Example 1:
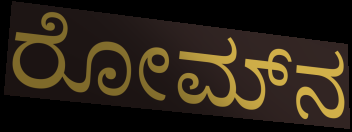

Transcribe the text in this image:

ರೋಮ್‌ನ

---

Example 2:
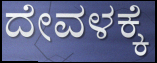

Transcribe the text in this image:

ದೇವಳಕ್ಕೆ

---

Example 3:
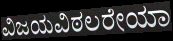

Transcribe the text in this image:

ವಿಜಯವಿಠಲರೇಯಾ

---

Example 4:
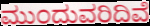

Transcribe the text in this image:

ಮುಂದುವರಿದಿವೆ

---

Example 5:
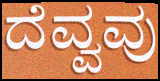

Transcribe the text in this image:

ದೆವ್ವವು